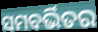
ସମବର୍ଭିତର